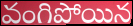
వంగిపోయిన